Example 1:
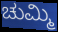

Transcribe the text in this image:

ಚುಮ್ಮಿ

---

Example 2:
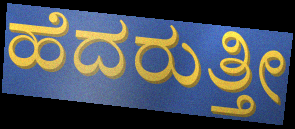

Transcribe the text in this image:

ಹೆದರುತ್ತೀ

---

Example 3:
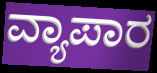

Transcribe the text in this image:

ವ್ಯಾಪಾರ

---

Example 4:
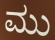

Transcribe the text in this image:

ಮು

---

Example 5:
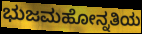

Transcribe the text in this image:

ಭುಜಮಹೋನ್ನತಿಯ